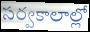
సర్వకాలాల్లో